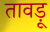
तावड़ू